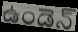
ఉండెన్